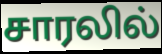
சாரலில்